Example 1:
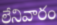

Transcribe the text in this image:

లేనివారం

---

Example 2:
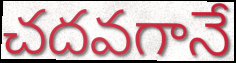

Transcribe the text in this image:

చదవగానే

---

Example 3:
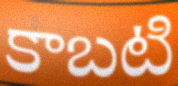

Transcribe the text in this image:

కాబటి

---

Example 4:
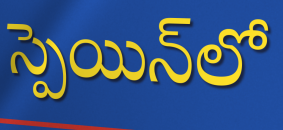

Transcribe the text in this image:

స్పెయిన్‌లో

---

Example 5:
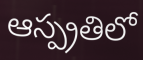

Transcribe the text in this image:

ఆస్ప్రతిలో